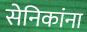
सेनिकांना